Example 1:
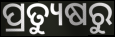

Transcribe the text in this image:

ପ୍ରତ୍ୟୁଷରୁ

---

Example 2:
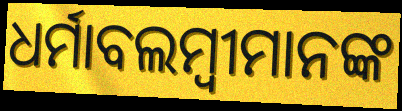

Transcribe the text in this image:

ଧର୍ମାବଲମ୍ବୀମାନଙ୍କ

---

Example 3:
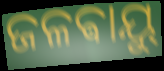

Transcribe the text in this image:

ଜଳଵାୟୁ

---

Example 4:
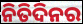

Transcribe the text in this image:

ନିତିଦିନର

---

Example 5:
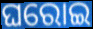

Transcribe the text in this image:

ଘରୋଇ